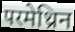
परमेथ्रिन